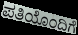
ಪತಿಯೊಂದಿಗೆ